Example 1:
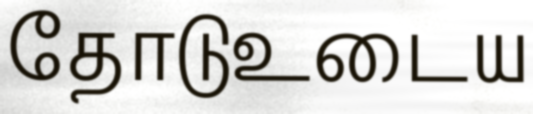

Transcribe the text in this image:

தோடுஉடைய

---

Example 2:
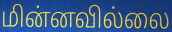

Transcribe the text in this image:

மின்னவில்லை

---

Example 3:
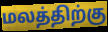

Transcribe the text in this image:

மலத்திற்கு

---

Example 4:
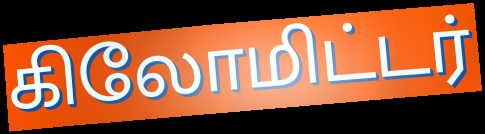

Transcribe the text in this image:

கிலோமிட்டர்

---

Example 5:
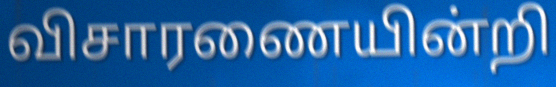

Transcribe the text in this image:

விசாரணையின்றி